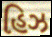
હિઝ